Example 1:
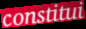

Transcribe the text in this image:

constitui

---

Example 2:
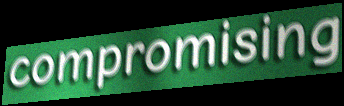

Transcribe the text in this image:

compromising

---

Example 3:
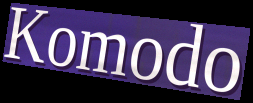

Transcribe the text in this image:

Komodo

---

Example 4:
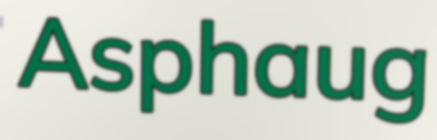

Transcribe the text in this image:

Asphaug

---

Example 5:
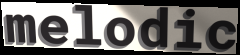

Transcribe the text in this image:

melodic